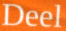
Deel